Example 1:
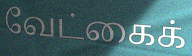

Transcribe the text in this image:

வேட்கைக்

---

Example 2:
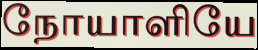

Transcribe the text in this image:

நோயாளியே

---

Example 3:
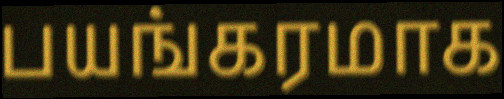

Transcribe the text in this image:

பயங்கரமாக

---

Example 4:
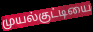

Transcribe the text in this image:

முயல்குட்டியை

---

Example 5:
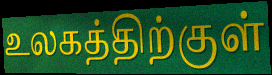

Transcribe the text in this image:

உலகத்திற்குள்